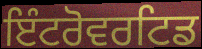
ਇੰਟਰੋਵਰਟਿਡ